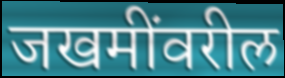
जखमींवरील